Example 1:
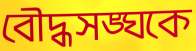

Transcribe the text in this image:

বৌদ্ধসঙ্ঘকে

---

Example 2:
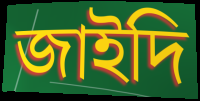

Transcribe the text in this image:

জাইদি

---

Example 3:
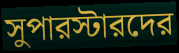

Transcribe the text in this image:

সুপারস্টারদের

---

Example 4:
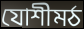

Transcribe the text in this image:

যোশীমঠ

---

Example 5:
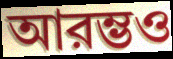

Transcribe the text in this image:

আরম্ভও